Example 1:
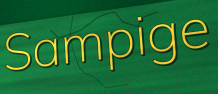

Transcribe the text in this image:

Sampige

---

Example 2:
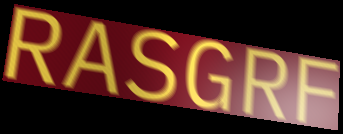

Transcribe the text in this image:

RASGRF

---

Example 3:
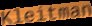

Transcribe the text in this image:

Kleitman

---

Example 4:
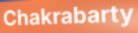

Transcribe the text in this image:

Chakrabarty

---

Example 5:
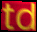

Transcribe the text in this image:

td